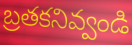
బ్రతకనివ్వండి